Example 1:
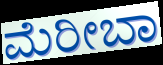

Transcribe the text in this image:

ಮೆರೀಬಾ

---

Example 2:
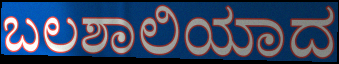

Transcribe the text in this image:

ಬಲಶಾಲಿಯಾದ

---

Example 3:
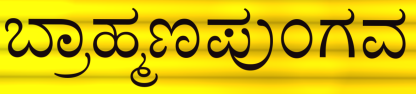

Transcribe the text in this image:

ಬ್ರಾಹ್ಮಣಪುಂಗವ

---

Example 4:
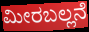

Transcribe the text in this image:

ಮೀರಬಲ್ಲನೆ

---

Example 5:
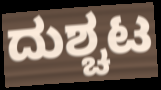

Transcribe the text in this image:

ದುಶ್ಚಟ